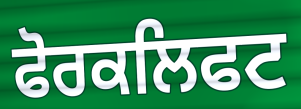
ਫੋਰਕਲਿਫਟ